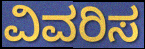
ವಿವರಿಸ